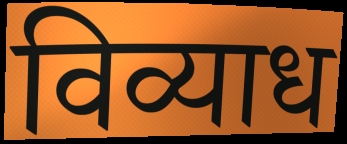
विव्याध